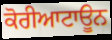
ਕੋਰੀਆਟਾਊਨ